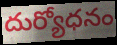
దుర్యోధనం